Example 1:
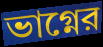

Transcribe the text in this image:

ভাগ্নের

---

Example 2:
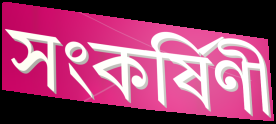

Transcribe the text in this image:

সংকর্ষিণী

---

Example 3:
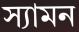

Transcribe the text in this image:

স্যামন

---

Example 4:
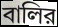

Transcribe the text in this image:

বালির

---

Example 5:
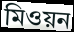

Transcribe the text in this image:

মিওয়ন